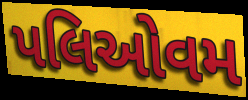
પલિઓવમ